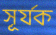
সূৰ্যক